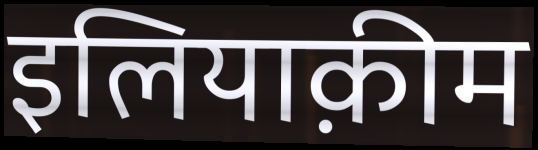
इलियाक़ीम